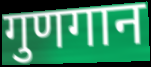
गुणगान